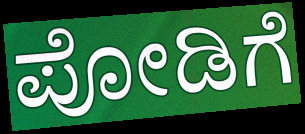
ಪೋಡಿಗೆ